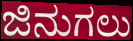
ಜಿನುಗಲು